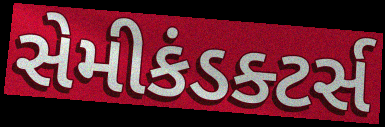
સેમીકંડક્ટર્સ